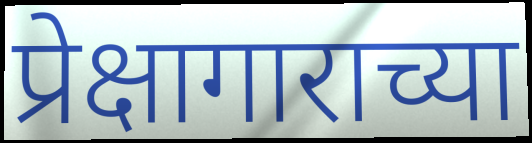
प्रेक्षागाराच्या